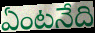
ఏంటనేది